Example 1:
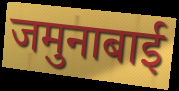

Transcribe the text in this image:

जमुनाबाई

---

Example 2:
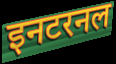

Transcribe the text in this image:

इनटरनल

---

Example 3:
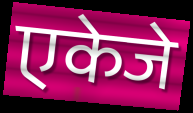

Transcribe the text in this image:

एकेजे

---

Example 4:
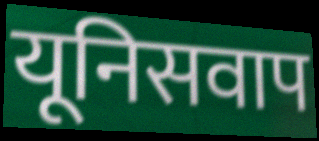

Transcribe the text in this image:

यूनिसवाप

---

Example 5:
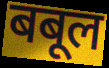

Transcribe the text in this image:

बबूल